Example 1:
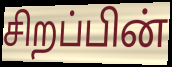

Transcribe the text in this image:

சிறப்பின்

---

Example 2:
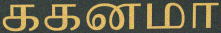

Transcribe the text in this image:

ககனமா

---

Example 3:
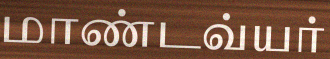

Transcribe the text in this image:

மாண்டவ்யர்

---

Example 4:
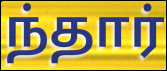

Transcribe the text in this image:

ந்தார்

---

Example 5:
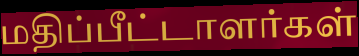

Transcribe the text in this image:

மதிப்பீட்டாளர்கள்